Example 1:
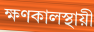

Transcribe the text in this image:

ক্ষণকালস্থায়ী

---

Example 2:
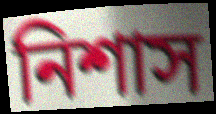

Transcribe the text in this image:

নিশাস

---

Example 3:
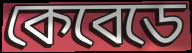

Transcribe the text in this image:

কেবেডে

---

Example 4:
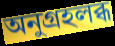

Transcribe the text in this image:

অনুগ্রহলব্ধ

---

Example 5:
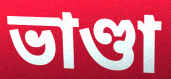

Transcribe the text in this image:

ভাণ্ডা